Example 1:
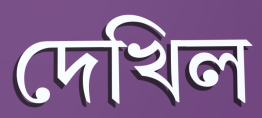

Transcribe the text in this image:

দেখিল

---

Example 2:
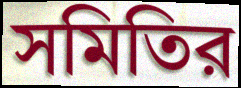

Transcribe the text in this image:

সমিতির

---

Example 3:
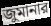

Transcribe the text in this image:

জুমানার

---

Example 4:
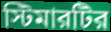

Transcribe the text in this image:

স্টিমারটির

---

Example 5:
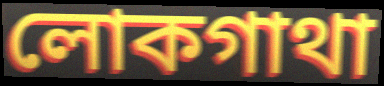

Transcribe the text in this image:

লোকগাথা